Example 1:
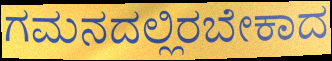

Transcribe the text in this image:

ಗಮನದಲ್ಲಿರಬೇಕಾದ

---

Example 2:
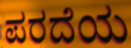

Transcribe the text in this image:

ಪರದೆಯ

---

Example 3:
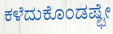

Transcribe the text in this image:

ಕಳೆದುಕೊಂಡಷ್ಟೇ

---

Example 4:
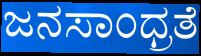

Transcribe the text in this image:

ಜನಸಾಂಧ್ರತೆ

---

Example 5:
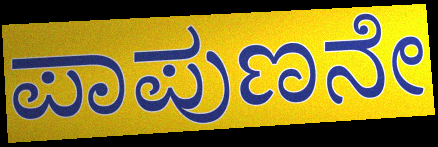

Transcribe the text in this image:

ಪಾಪುಣನೇ